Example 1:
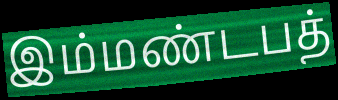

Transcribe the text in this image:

இம்மண்டபத்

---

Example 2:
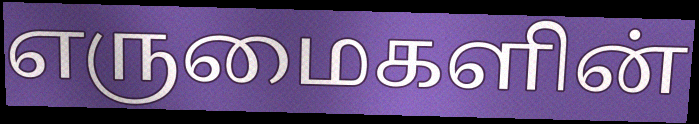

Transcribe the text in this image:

எருமைகளின்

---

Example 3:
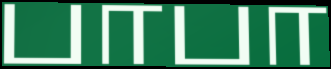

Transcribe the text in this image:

பாபா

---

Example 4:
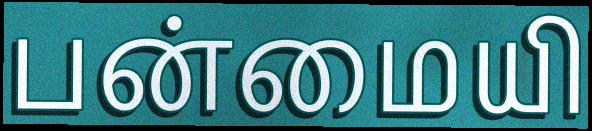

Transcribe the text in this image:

பன்மையி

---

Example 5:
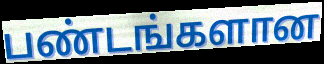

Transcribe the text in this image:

பண்டங்களான